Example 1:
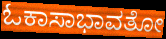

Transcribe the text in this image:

ಓಕಾಸಾಭಾವತೋ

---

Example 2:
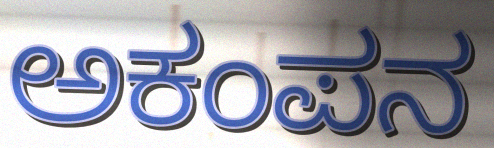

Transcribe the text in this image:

ಅಕಂಪನ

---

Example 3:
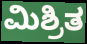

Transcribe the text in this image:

ಮಿಶ್ರಿತ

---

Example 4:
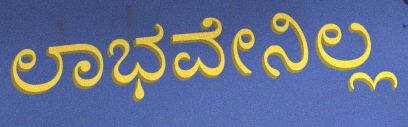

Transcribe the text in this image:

ಲಾಭವೇನಿಲ್ಲ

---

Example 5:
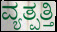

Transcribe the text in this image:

ವ್ಯತ್ಪತ್ತಿ